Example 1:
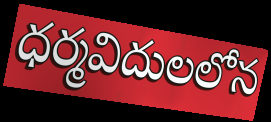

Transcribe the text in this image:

ధర్మవిదులలోన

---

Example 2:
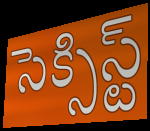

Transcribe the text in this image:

సెక్సిస్ట్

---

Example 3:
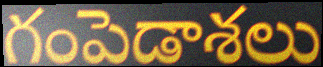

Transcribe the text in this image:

గంపెడాశలు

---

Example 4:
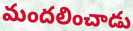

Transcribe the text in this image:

మందలించాడు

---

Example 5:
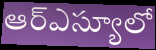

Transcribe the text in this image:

ఆర్ఎస్యూలో